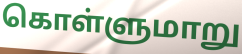
கொள்ளுமாறு